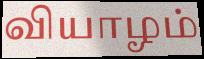
வியாழம்